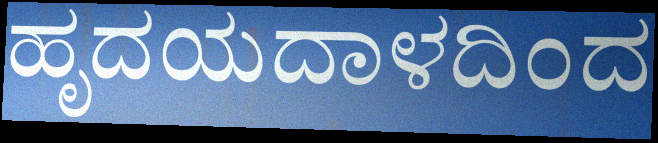
ಹೃದಯದಾಳದಿಂದ